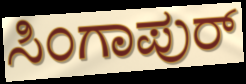
ಸಿಂಗಾಪುರ್